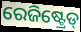
ରେଜିଷ୍ଟ୍ରେଡ୍